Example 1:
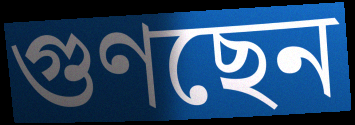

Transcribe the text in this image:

গুণছেন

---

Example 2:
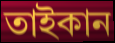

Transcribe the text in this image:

তাইকান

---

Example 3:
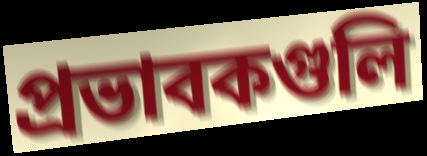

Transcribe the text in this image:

প্রভাবকগুলি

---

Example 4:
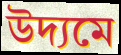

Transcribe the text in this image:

উদ্যমে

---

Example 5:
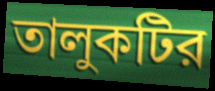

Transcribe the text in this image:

তালুকটির